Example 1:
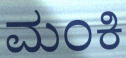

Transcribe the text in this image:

ಮಂಕಿ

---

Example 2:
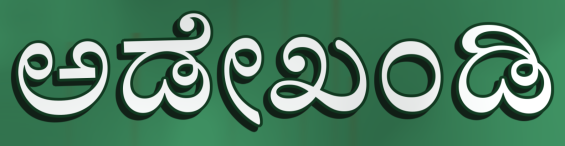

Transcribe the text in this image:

ಅಡೇಖಂಡಿ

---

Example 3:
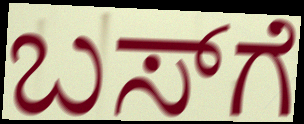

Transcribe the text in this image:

ಬಸ್‍ಗೆ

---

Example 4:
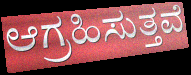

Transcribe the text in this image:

ಆಗ್ರಹಿಸುತ್ತವೆ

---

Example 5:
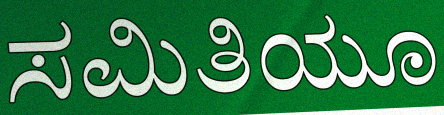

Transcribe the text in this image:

ಸಮಿತಿಯೂ